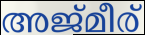
അജ്മീര്